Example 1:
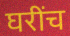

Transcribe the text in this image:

घरींच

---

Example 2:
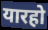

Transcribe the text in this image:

यारहो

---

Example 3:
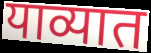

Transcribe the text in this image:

याव्यात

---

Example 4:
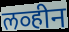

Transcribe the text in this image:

लव्हीन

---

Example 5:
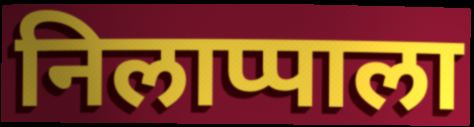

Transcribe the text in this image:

निलाप्पाला